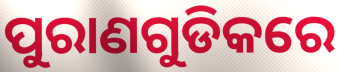
ପୁରାଣଗୁଡିକରେ